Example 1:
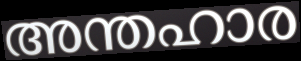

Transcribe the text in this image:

അന്തഹാര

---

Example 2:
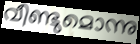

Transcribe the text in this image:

വീണ്ടുമൊന്നു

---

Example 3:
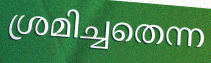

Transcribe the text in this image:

ശ്രമിച്ചതെന്ന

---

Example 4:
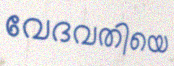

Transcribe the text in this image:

വേദവതിയെ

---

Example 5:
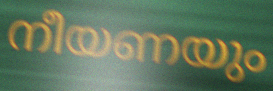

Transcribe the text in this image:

നീയണയും